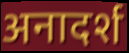
अनादर्श